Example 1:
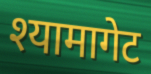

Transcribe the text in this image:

श्यामागेट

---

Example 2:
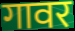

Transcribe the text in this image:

गावर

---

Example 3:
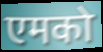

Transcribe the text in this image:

एमको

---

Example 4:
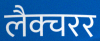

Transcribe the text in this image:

लैक्चरर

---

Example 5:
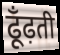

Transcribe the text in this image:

ढूँढ़ती